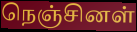
நெஞ்சினள்